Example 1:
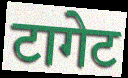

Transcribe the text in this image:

टागेट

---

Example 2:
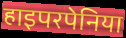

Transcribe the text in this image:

हाइपरपेनिया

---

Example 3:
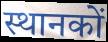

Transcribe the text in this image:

स्थानकों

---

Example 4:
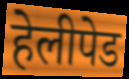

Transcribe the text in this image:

हेलीपेड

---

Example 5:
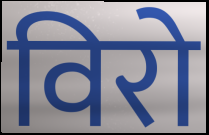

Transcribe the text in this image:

विरो